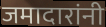
जमादारांनी